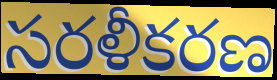
సరళీకరణ